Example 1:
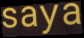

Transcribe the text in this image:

saya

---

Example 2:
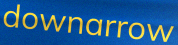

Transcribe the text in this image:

downarrow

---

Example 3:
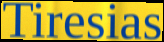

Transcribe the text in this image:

Tiresias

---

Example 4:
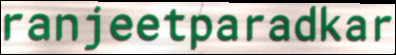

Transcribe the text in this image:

ranjeetparadkar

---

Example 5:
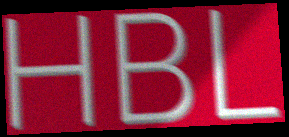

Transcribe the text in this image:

HBL